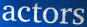
actors